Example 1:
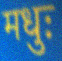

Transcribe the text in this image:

मधुः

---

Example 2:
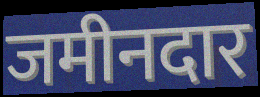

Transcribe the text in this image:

जमीनदार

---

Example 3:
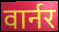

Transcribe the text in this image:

वार्नर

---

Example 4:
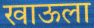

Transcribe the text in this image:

खाऊला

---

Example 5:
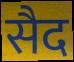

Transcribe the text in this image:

सैद